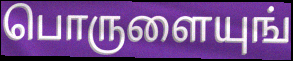
பொருளையுங்